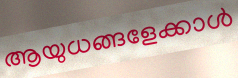
ആയുധങ്ങളേക്കാൾ